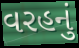
વરહનું